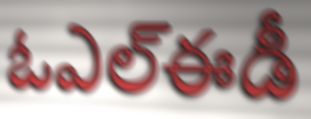
ఓఎల్ఈడీ